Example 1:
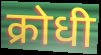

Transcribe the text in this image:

क्रोधी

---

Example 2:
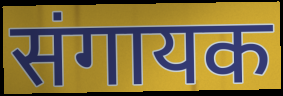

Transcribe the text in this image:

संगायक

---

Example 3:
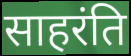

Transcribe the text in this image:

साहरंति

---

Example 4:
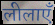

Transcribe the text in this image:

लीलाएँ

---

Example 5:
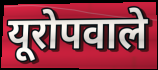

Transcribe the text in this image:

यूरोपवाले